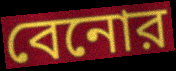
বেনোর